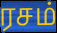
ரசம்